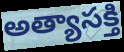
అత్యాసక్తి